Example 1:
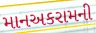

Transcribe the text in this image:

માનઅકરામની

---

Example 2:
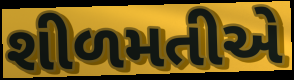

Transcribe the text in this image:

શીળમતીએ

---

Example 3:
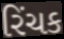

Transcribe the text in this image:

રિંચક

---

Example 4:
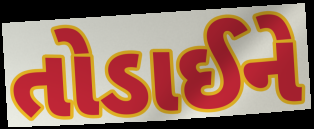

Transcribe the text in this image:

તોડાઈને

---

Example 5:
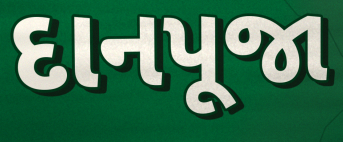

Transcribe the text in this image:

દાનપૂજા